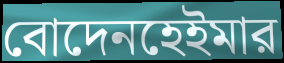
বোদেনহেইমার